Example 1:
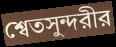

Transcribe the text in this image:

শ্বেতসুন্দরীর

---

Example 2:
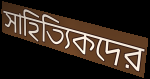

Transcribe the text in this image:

সাহিত্যিকদের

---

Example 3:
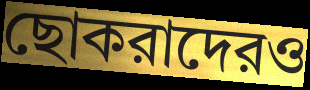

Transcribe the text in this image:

ছোকরাদেরও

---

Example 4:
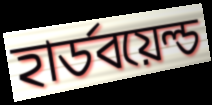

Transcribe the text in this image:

হার্ডবয়েল্ড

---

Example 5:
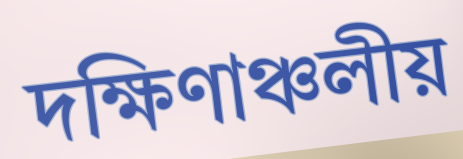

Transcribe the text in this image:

দক্ষিণাঞ্চলীয়